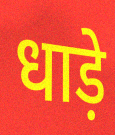
धाड़े